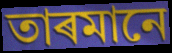
তাৰমানে